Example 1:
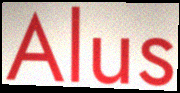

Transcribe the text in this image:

Alus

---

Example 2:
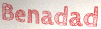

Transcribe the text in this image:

Benadad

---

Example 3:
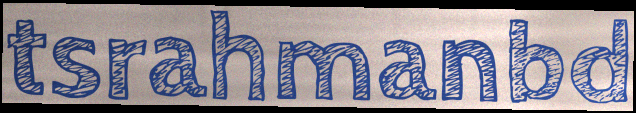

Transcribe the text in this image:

tsrahmanbd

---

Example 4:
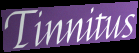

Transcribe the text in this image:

Tinnitus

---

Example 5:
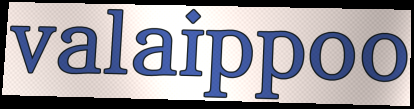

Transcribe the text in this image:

valaippoo